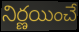
నిర్ణయించే